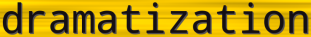
dramatization